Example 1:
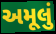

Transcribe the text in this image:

અમૂલું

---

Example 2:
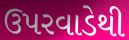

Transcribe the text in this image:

ઉપરવાડેથી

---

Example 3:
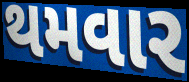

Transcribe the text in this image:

થમવાર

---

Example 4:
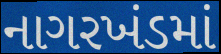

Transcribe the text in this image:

નાગરખંડમાં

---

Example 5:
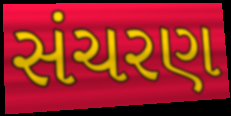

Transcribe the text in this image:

સંચરણ